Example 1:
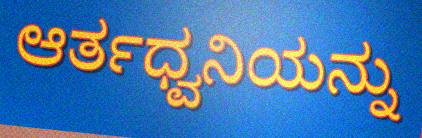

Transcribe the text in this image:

ಆರ್ತಧ್ವನಿಯನ್ನು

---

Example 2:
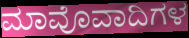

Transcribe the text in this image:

ಮಾವೊವಾದಿಗಳ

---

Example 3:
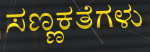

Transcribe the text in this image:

ಸಣ್ಣಕತೆಗಳು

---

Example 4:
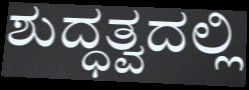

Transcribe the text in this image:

ಶುದ್ಧತ್ವದಲ್ಲಿ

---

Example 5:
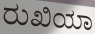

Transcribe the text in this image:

ರುಖಿಯಾ